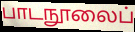
பாடநூலைப்